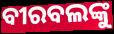
ବୀରବଲଙ୍କୁ